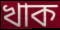
খাক